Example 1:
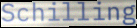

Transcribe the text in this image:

Schilling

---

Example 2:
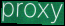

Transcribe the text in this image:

proxy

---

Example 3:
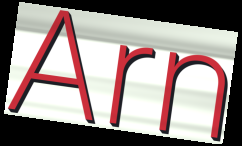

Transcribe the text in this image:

Arn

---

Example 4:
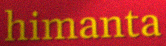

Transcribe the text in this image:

himanta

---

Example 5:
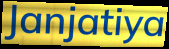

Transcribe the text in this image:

Janjatiya